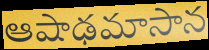
ఆషాఢమాసాన